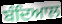
ਬੰਦਿਆਲ